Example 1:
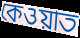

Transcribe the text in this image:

কেওয়াত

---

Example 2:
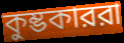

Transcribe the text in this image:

কুম্ভকাররা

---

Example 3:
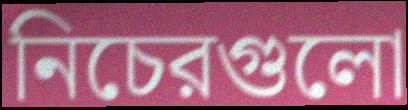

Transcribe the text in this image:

নিচেরগুলো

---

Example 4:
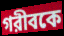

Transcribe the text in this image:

গরীবকে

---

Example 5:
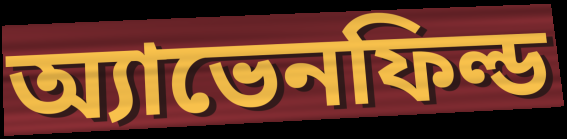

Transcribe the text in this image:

অ্যাভেনফিল্ড